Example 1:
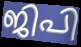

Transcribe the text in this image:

ജിപി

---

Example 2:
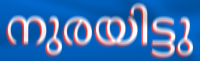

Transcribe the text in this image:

നുരയിട്ടു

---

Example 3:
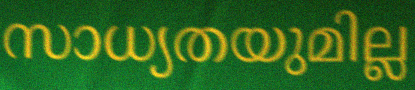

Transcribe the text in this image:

സാധ്യതയുമില്ല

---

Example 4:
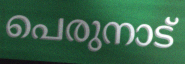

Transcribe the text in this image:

പെരുനാട്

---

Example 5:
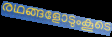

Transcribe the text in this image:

രഥങ്ങളോടുംകൂടെ